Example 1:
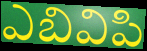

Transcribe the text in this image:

ఎబివిపి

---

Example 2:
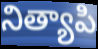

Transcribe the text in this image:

నిత్యాపి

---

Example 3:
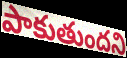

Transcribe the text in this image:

పాకుతుందని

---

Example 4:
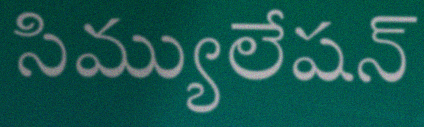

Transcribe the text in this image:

సిమ్యులేషన్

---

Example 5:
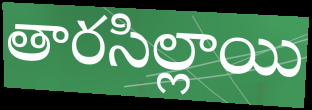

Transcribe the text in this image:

తారసిల్లాయి